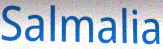
Salmalia